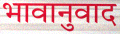
भावानुवाद